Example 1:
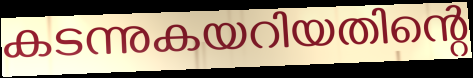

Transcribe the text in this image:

കടന്നുകയറിയതിന്റെ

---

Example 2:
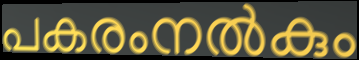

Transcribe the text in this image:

പകരംനൽകും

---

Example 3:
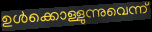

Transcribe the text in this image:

ഉൾക്കൊള്ളുന്നുവെന്ന്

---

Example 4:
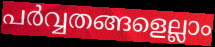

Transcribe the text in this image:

പർവ്വതങ്ങളെല്ലാം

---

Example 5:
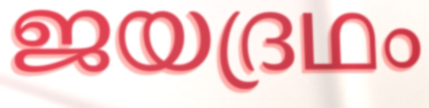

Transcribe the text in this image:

ജയദ്രഥം